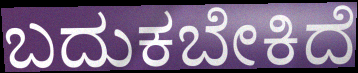
ಬದುಕಬೇಕಿದೆ